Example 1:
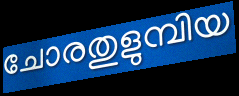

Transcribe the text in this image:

ചോരതുളുമ്പിയ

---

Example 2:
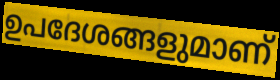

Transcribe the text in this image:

ഉപദേശങ്ങളുമാണ്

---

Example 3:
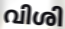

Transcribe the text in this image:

വിശി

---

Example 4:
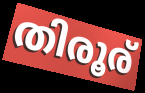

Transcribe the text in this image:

തിരൂര്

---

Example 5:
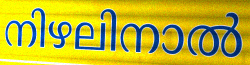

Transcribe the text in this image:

നിഴലിനാൽ